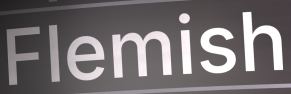
Flemish